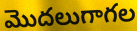
మొదలుగాగల